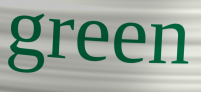
green